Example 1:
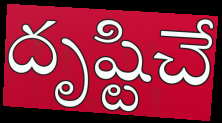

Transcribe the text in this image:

దృష్టిచే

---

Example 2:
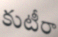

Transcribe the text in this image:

కుటీరా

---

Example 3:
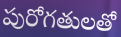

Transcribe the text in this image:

పురోగతులతో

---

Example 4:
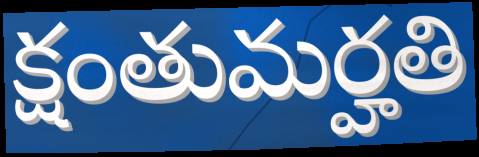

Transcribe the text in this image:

క్షంతుమర్హతి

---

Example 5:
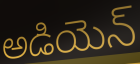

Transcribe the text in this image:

అడియెన్